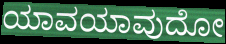
ಯಾವಯಾವುದೋ